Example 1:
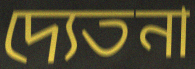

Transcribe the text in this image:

দ্যেতনা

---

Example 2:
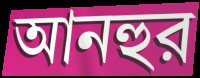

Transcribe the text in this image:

আনহুর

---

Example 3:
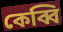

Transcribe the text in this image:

কেব্বি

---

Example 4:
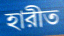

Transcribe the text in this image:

হারীত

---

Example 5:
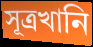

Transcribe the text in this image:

সূত্রখানি